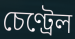
চেণ্ট্ৰেল